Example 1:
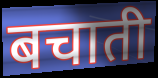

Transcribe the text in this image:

बचाती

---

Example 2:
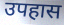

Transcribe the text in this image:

उपहास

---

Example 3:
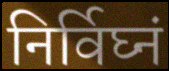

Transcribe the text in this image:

निर्विघ्नं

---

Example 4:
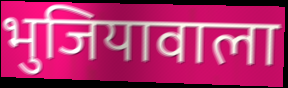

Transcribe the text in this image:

भुजियावाला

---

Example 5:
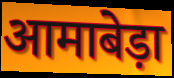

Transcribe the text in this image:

आमाबेड़ा